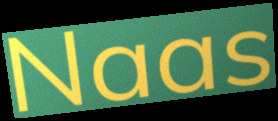
Naas